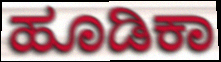
ಹೂಡಿಕಾ